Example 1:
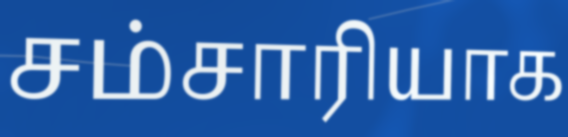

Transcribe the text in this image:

சம்சாரியாக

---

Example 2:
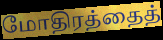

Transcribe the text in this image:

மோதிரத்தைத்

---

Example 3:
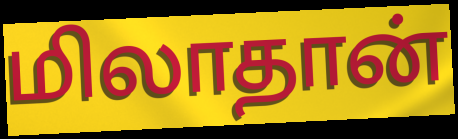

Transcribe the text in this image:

மிலாதான்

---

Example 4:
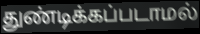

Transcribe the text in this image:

துண்டிக்கப்படாமல்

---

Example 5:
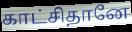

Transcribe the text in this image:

காட்சிதானே